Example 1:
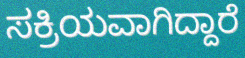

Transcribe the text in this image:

ಸಕ್ರಿಯವಾಗಿದ್ದಾರೆ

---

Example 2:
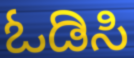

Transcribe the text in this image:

ಓಡಿಸಿ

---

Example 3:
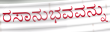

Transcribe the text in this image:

ರಸಾನುಭವವನ್ನು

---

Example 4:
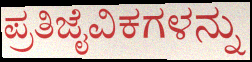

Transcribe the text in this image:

ಪ್ರತಿಜೈವಿಕಗಳನ್ನು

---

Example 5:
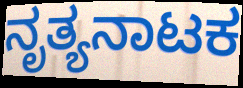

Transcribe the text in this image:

ನೃತ್ಯನಾಟಕ